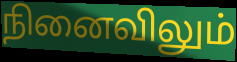
நினைவிலும்